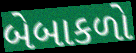
બેબાકળો